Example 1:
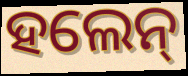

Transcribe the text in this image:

ହଲେନ୍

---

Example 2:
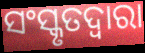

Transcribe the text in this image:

ସଂସ୍କୃତଦ୍ୱାରା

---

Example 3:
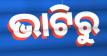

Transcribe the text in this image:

ଭାଟିରୁ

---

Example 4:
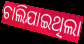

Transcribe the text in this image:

ଚାଲିଯାଇଥିଲା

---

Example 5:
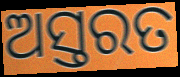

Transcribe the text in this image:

ଅସ୍ତରତ